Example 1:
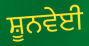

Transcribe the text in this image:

ਸ਼ੂਨਵੇਈ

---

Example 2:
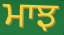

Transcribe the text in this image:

ਮਾਝ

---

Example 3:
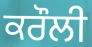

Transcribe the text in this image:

ਕਰੌਲੀ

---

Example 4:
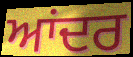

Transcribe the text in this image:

ਆਂਦਰ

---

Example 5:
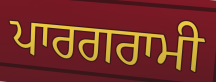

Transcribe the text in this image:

ਪਾਰਗਰਾਮੀ